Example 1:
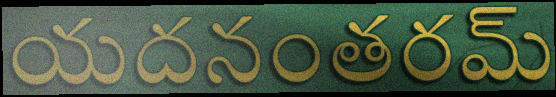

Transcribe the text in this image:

యదనంతరమ్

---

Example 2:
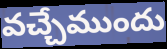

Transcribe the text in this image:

వచ్చేముందు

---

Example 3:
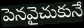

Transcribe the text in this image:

పెనవైచుకునే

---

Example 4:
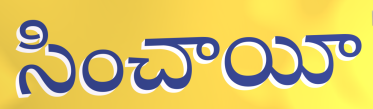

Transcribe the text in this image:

సించాయీ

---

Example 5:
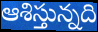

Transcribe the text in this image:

ఆశిస్తున్నది